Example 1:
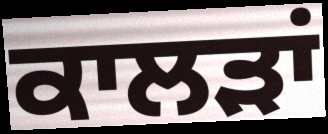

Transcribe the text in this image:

ਕਾਲੜਾਂ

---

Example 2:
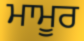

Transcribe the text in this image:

ਮਾਮੂਰ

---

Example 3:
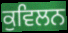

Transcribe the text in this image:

ਕੁਵਿਲਨ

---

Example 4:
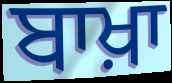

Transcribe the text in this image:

ਬਾਖ਼ਾ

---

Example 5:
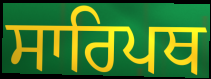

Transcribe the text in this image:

ਸਾਰਿਪਥ